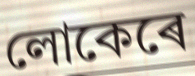
লোকেৰে